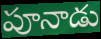
పూనాడు